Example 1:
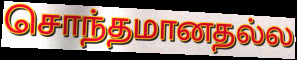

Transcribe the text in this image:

சொந்தமானதல்ல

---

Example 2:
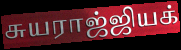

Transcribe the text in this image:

சுயராஜ்ஜியக்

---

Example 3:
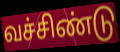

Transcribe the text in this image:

வச்சிண்டு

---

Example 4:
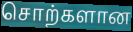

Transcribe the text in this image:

சொற்களான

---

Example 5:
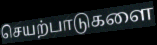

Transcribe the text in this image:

செயற்பாடுகளை